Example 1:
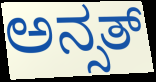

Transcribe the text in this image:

ಅನ್ಸತ್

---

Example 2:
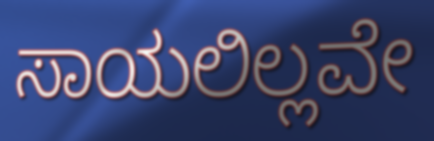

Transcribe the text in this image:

ಸಾಯಲಿಲ್ಲವೇ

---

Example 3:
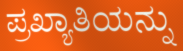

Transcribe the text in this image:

ಪ್ರಖ್ಯಾತಿಯನ್ನು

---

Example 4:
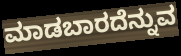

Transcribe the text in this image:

ಮಾಡಬಾರದೆನ್ನುವ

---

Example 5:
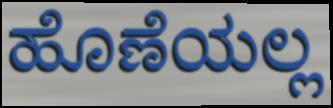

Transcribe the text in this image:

ಹೊಣೆಯಲ್ಲ